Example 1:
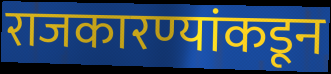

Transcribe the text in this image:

राजकारण्यांकडून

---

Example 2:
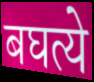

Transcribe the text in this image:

बघत्ये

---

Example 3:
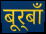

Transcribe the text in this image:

बूर्‌बाँ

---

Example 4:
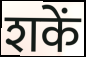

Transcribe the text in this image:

शकें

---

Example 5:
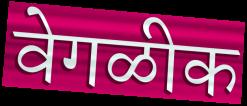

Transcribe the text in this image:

वेगळीक